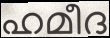
ഹമീദ